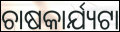
ଚାଷକାର୍ଯ୍ୟଟା